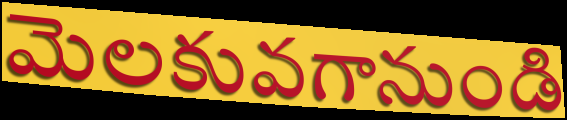
మెలకువగానుండి